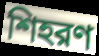
শিহরণ